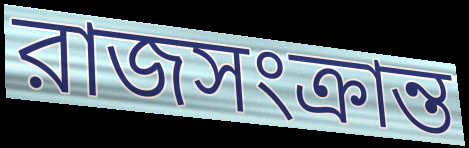
রাজসংক্রান্ত